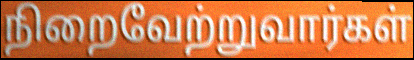
நிறைவேற்றுவார்கள்